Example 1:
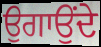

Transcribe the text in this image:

ਉਗਾਉਂਦੇ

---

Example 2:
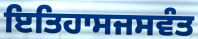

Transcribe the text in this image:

ਇਤਿਹਾਸਜਸਵੰਤ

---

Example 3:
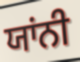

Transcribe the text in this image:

ਯਾਂਨੀ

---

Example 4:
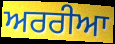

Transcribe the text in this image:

ਅਰਰੀਆ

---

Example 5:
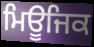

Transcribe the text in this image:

ਮਿਊਜਿਕ